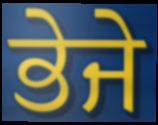
ਭੇਜੇ